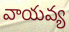
వాయవ్య